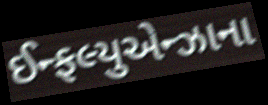
ઈન્ફલ્યુએન્ઝાના